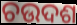
ଚଉଦଶ